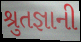
શ્રુતજ્ઞાની